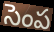
సెంప